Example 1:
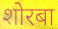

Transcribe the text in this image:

शोरबा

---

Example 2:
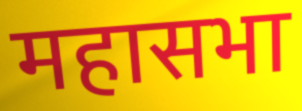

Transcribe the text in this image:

महासभा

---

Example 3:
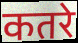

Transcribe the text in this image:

कतरे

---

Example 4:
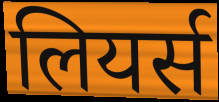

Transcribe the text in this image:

लियर्स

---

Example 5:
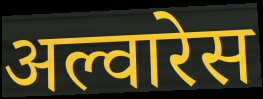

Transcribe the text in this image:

अल्वारेस